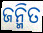
ଜନ୍ମିତ